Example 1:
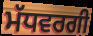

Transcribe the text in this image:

ਮੱਧਵਰਗੀ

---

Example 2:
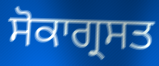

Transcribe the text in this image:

ਸੋਕਾਗ੍ਰਸਤ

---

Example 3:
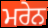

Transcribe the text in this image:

ਮਰੇਨ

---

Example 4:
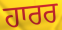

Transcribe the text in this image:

ਹਾਰਰ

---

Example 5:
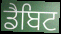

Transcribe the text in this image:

ਡੈਬਿਟ